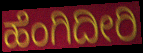
ಹೆಂಗಿದೀರಿ